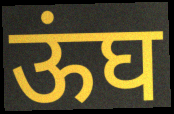
ऊंघ